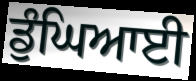
ਡੁੰਘਿਆਈ